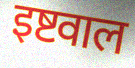
इष्टवाल